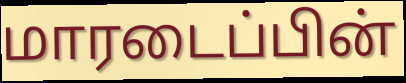
மாரடைப்பின்